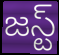
జస్ట్